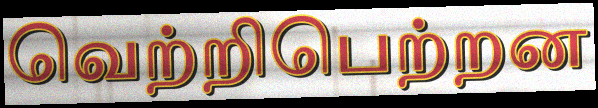
வெற்றிபெற்றன